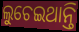
ଲୁଚେଇଥାନ୍ତି